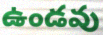
ఉండవు